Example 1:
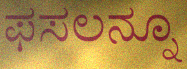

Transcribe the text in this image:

ಫಸಲನ್ನೂ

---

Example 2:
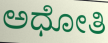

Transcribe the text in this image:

ಅಧೋತಿ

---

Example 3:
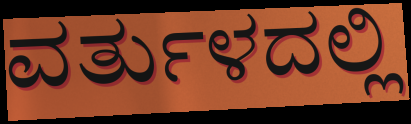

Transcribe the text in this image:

ವರ್ತುಳದಲ್ಲಿ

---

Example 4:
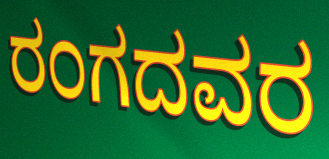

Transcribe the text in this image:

ರಂಗದವರ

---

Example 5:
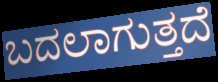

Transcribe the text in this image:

ಬದಲಾಗುತ್ತದೆ